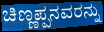
ಚಿಣ್ಣಪ್ಪನವರನ್ನು